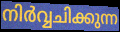
നിർവ്വചിക്കുന്ന